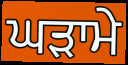
ਘੜਾਮੇ